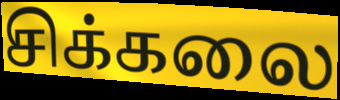
சிக்கலை